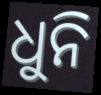
ଧୁନି